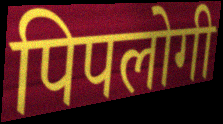
पिपलोगी